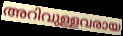
അറിവുള്ളവരായ